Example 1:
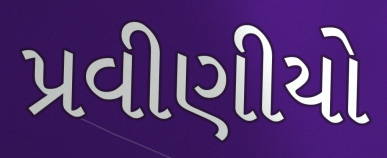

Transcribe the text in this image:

પ્રવીણીયો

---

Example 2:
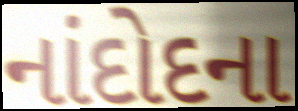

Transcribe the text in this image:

નાંદોદના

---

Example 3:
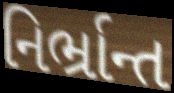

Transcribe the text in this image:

નિર્ભ્રાન્ત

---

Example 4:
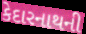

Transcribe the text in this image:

કેદારનાથની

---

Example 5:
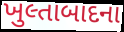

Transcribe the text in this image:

ખુલ્તાબાદના